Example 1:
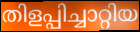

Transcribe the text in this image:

തിളപ്പിച്ചാറ്റിയ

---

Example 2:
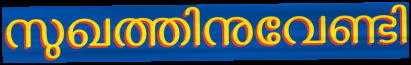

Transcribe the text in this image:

സുഖത്തിനുവേണ്ടി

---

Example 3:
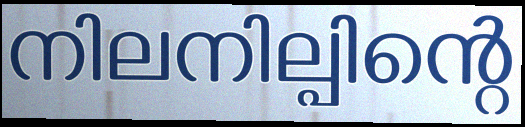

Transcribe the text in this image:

നിലനില്പിന്റെ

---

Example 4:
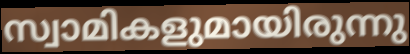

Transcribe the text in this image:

സ്വാമികളുമായിരുന്നു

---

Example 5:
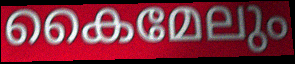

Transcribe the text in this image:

കൈമേലും